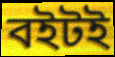
বইটই